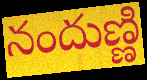
నందుణ్ణి